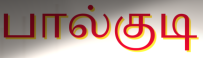
பால்குடி